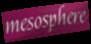
mesosphere